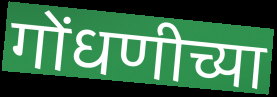
गोंधणीच्या